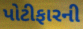
પોટીફારની